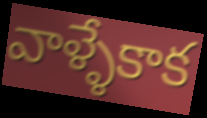
వాళ్ళేకాక